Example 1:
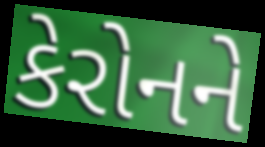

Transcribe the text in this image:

કેરોનને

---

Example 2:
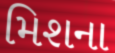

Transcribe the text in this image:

મિશના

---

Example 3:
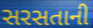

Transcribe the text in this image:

સરસતાની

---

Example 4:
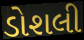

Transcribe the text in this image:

ડોશલી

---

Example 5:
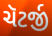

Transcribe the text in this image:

ચૅટર્જી